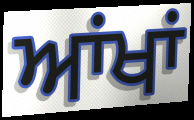
ਆਂਖਾਂ